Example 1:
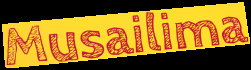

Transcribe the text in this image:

Musailima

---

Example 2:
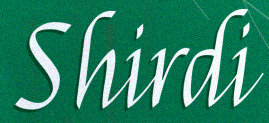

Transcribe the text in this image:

Shirdi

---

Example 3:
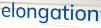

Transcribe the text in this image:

elongation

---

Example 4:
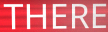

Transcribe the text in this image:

THERE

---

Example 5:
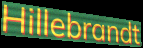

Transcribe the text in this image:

Hillebrandt